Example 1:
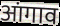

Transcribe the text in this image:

आंगाव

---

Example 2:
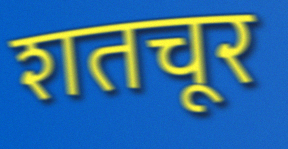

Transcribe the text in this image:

शतचूर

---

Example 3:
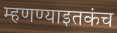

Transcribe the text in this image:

म्हणण्याइतकंच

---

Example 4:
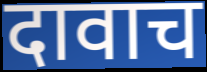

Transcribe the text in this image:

दावाच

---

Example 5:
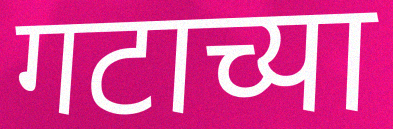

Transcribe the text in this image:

गटाच्या